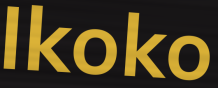
Ikoko